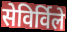
सेविर्विले